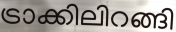
ട്രാക്കിലിറങ്ങി